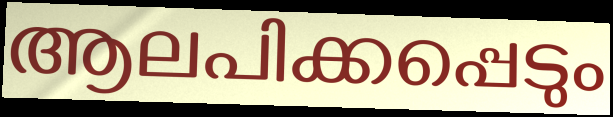
ആലപിക്കപ്പെടും